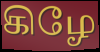
கிழே